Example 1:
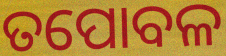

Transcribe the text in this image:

ତପୋବଳ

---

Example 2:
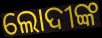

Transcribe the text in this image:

ଲୋଦୀଙ୍କ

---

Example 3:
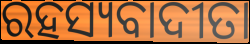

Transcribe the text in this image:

ରହସ୍ୟବାଦୀତା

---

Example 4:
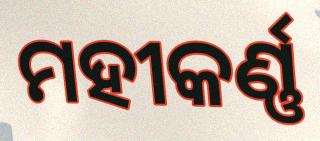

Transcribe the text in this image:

ମହୀକର୍ଣ୍ଣ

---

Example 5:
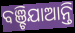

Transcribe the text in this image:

ବଞ୍ଚିଯାଆନ୍ତି